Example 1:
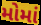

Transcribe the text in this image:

મોમાં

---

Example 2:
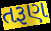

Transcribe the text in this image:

તરૂણ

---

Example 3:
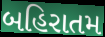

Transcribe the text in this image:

બહિરાતમ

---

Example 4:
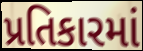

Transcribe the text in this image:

પ્રતિકારમાં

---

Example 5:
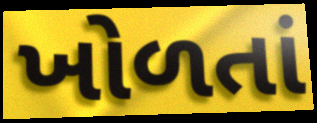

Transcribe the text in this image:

ખોળતાં